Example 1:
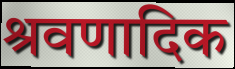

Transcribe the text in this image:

श्रवणादिक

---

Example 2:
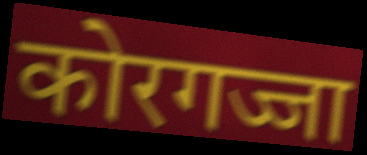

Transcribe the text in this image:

कोरगज्जा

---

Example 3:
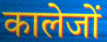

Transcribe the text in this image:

कालेजों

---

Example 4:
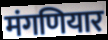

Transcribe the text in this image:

मंगणियार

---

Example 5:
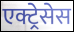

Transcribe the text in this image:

एक्ट्रेसेस